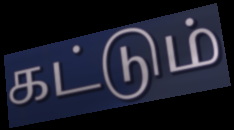
கட்டும்